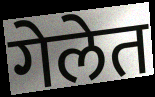
गेलेत